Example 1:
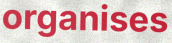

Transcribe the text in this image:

organises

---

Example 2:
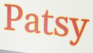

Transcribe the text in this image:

Patsy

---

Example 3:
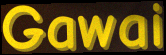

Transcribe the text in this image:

Gawai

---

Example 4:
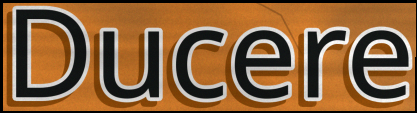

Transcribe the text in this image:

Ducere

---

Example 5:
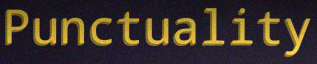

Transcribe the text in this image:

Punctuality